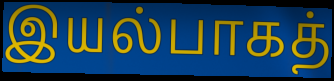
இயல்பாகத்